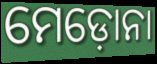
ମେଡ଼ୋନା